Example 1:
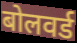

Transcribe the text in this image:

बोलवर्ड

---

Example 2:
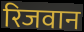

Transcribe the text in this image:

रिजवान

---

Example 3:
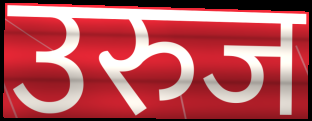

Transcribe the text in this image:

उरुज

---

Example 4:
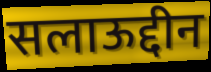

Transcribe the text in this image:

सलाऊद्दीन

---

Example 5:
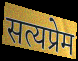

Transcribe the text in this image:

सत्यप्रेम